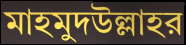
মাহমুদউল্লাহর